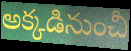
అక్కడినుంచీ